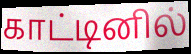
காட்டினில்